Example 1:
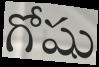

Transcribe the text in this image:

గోషు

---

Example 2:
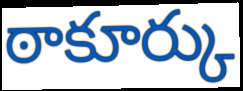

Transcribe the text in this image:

ఠాకూర్కు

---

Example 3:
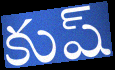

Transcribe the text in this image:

కుష్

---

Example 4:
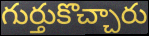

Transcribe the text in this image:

గుర్తుకొచ్చారు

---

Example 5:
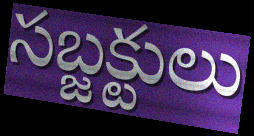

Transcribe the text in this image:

సబ్జక్టులు